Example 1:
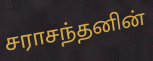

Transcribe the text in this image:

சராசந்தனின்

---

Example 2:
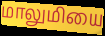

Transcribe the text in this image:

மாலுமியை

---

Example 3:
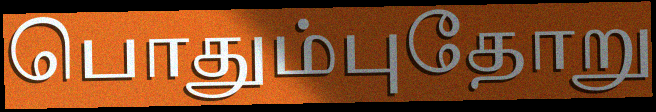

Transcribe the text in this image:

பொதும்புதோறு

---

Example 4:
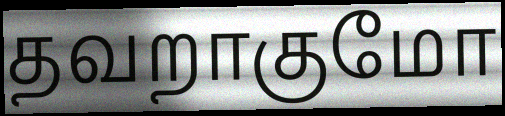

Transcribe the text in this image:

தவறாகுமோ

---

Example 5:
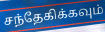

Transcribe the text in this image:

சந்தேகிக்கவும்